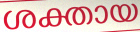
ശക്തായ